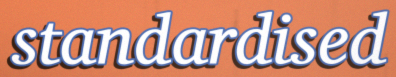
standardised